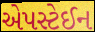
એપસ્ટેઈન